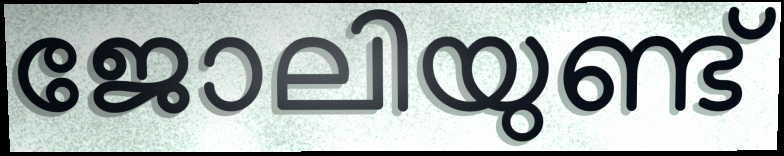
ജോലിയുണ്ട്